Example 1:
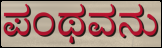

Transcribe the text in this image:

ಪಂಥವನು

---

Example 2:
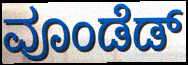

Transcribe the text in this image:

ವೂಂಡೆಡ್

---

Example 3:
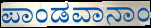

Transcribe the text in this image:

ಪಾಂಡವಾನಾಂ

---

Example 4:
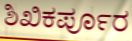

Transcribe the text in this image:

ಶಿಖಿಕರ್ಪೂರ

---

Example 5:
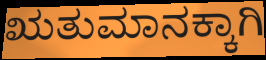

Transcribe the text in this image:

ಋತುಮಾನಕ್ಕಾಗಿ